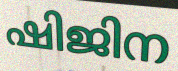
ഷിജിന